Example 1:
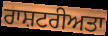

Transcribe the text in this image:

ਰਾਸ਼ਟਰੀਅਤਾ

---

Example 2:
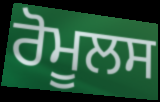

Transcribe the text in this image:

ਰੋਮੂਲਸ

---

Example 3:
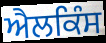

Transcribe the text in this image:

ਐਲਕਿੰਸ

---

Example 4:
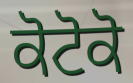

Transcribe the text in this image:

ਕੋਟੋਕੋ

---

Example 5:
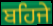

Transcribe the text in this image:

ਬਹਿਜੇ